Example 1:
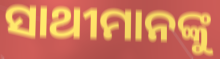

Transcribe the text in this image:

ସାଥୀମାନଙ୍କୁ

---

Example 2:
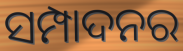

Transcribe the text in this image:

ସମ୍ପାଦନର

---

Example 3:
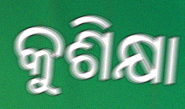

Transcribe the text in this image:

କୁଶିକ୍ଷା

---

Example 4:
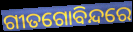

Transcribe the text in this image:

ଗୀତଗୋବିନ୍ଦରେ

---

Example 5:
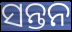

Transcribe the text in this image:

ସନ୍ତନ